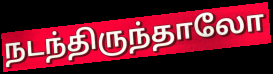
நடந்திருந்தாலோ